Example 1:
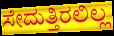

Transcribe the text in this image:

ಸೇದುತ್ತಿರಲಿಲ್ಲ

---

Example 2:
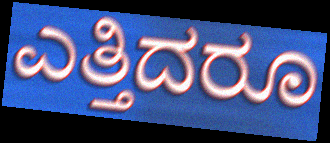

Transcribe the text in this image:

ಎತ್ತಿದರೂ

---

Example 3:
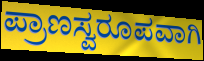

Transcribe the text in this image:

ಪ್ರಾಣಸ್ವರೂಪವಾಗಿ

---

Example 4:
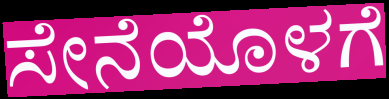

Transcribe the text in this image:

ಸೇನೆಯೊಳಗೆ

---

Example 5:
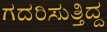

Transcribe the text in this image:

ಗದರಿಸುತ್ತಿದ್ದ